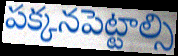
పక్కనపెట్టాల్సి